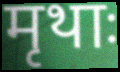
मृथाः